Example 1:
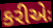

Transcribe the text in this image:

કરીએઃ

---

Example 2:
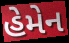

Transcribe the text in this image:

હેમેન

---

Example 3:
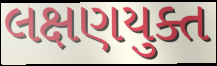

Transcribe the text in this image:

લક્ષણયુક્ત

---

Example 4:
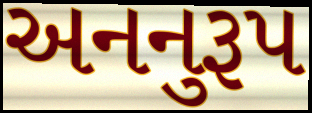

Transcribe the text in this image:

અનનુરૂપ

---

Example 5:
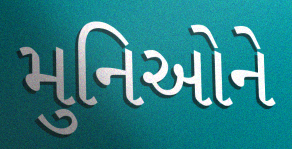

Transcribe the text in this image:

મુનિઓને